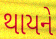
થાયને